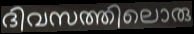
ദിവസത്തിലൊരു